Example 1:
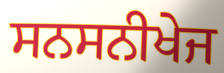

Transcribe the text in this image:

ਸਨਸਨੀਖੇਜ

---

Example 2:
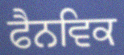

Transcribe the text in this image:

ਫੈਨਵਿਕ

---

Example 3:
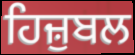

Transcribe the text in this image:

ਹਿਜ਼ੁਬਲ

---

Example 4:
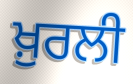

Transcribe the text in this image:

ਖ਼ੁਰਲੀ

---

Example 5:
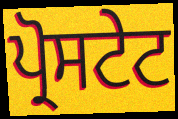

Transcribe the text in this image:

ਪ੍ਰੋਸਟੇਟ